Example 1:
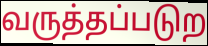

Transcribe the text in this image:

வருத்தப்படுற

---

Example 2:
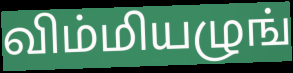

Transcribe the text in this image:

விம்மியழுங்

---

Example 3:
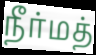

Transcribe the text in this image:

நீர்மத்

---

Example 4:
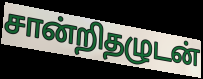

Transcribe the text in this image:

சான்றிதழுடன்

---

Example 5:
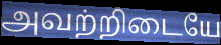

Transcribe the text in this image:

அவற்றிடையே